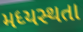
મધ્યસ્થતા